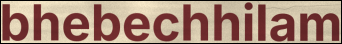
bhebechhilam